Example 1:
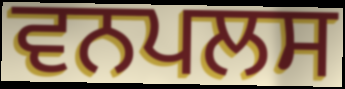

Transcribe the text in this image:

ਵਨਪਲਸ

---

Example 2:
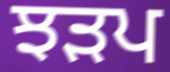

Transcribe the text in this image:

ਝੜਪ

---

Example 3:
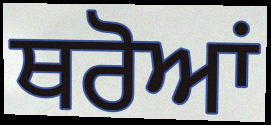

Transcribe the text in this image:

ਥਰੋਆਂ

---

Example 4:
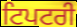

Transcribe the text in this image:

ਟਿਪਟਰੀ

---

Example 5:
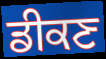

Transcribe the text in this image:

ਡੀਕਣ